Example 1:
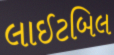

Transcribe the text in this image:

લાઈટબિલ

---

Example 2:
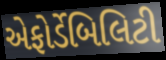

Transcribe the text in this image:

એફોર્ડેબિલિટી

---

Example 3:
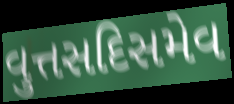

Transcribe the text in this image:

વુત્તસદિસમેવ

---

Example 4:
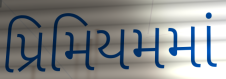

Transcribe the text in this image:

પ્રિમિયમમાં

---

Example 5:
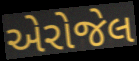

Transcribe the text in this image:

એરોજેલ